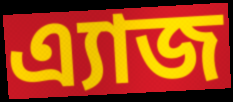
এ্যাজ